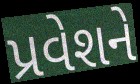
પ્રવેશને